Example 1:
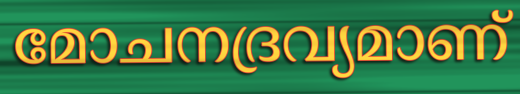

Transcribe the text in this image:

മോചനദ്രവ്യമാണ്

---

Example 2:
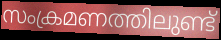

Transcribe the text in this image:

സംക്രമണത്തിലുണ്ട്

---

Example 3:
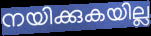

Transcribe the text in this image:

നയിക്കുകയില്ല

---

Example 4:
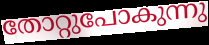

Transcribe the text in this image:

തോറ്റുപോകുന്നു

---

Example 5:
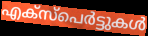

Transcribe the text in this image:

എക്സ്പെർട്ടുകൾ